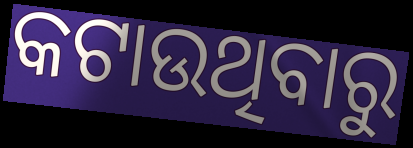
କଟାଉଥିବାରୁ